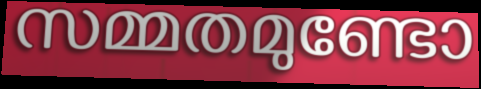
സമ്മതമുണ്ടോ